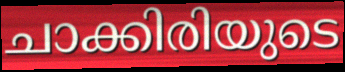
ചാക്കിരിയുടെ